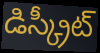
డిస్క్రీట్